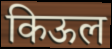
किऊल